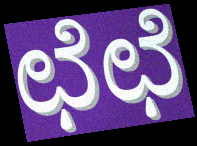
ಛೆಛೆ